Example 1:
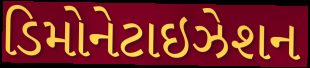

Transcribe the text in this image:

ડિમોનેટાઇઝેશન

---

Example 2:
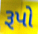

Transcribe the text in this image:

રૂપો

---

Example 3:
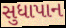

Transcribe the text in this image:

સુધાપાન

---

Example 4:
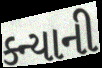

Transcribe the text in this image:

ક્ન્યાની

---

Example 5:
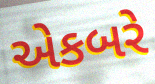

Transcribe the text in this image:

એકબરે